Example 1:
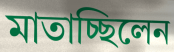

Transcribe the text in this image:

মাতাচ্ছিলেন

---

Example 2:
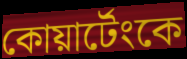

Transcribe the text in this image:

কোয়ার্টেংকে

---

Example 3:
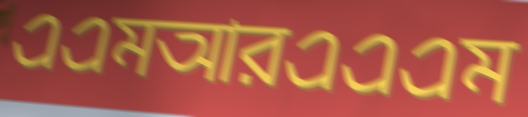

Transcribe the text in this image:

এএমআরএএএম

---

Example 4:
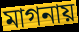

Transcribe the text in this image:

মাগনায়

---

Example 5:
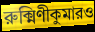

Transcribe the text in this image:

রুক্মিণীকুমারও